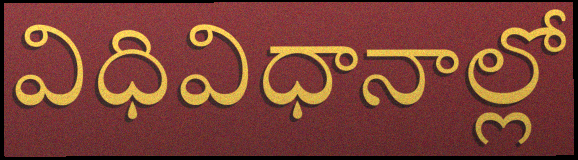
విధివిధానాల్లో